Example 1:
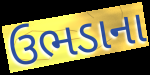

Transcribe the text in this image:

ઉભડાના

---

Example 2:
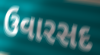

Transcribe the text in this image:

ઉવારસદ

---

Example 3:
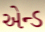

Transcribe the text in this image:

એન્ડ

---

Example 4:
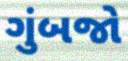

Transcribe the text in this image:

ગુંબજો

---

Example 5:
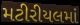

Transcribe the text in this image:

મટીરીયલમાં